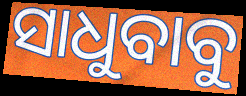
ସାଧୁବାବୁ